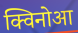
क्विनोआ